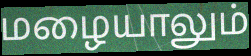
மழையாலும்